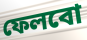
ফেলবো